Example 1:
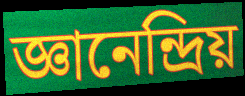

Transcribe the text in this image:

জ্ঞানেন্দ্রিয়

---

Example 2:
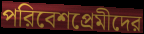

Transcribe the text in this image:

পরিবেশপ্রেমীদের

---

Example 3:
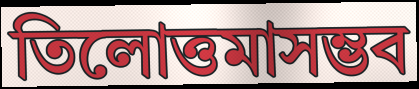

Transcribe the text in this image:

তিলোত্তমাসম্ভব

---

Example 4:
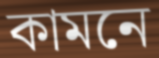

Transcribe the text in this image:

কামনে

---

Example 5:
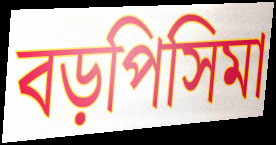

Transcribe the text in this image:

বড়পিসিমা